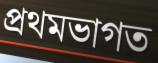
প্ৰথমভাগত